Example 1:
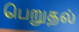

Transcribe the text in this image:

பெறுதல்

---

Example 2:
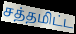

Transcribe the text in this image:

சத்தமிட்ட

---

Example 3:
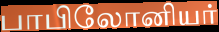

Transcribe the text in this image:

பாபிலோனியர்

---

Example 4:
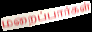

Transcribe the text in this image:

மறைப்பார்கள்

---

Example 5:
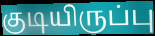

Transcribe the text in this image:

குடியிருப்பு